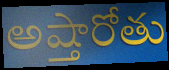
అష్తారోతు